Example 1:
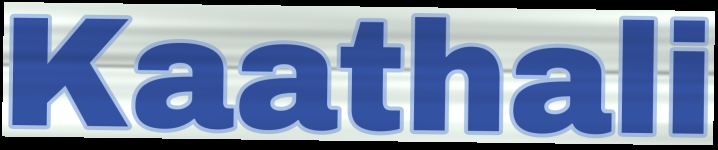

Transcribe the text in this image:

Kaathali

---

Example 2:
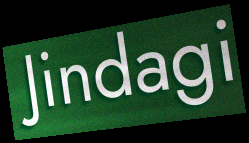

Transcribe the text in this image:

Jindagi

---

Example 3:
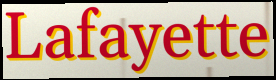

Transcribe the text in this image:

Lafayette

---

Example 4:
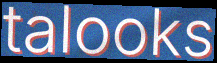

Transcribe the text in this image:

talooks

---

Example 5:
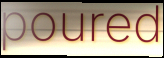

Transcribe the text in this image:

poured